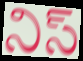
నిస్